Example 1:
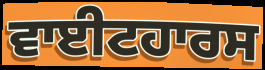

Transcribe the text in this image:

ਵਾਈਟਹਾਰਸ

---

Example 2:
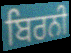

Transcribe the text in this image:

ਬਿਰਨੀ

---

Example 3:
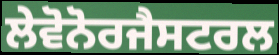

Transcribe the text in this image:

ਲੇਵੋਨੋਰਜੈਸਟਰਲ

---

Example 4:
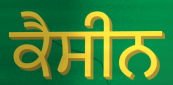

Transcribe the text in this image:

ਕੈਸੀਨ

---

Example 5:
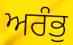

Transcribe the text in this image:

ਅਰੰਭੁ